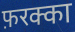
फ़रक्का